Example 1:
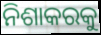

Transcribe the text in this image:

ନିଶାକରକୁ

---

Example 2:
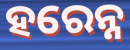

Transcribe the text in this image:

ହରେନ୍ନ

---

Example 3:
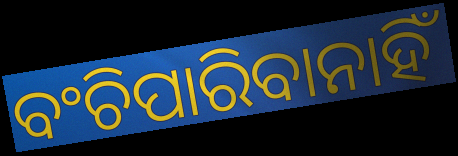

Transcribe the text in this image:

ବଂଚିପାରିବାନାହିଁ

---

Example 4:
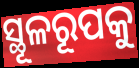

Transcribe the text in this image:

ସ୍ଥୂଳରୂପକୁ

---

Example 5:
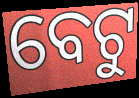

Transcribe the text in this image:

ବେଟୁ